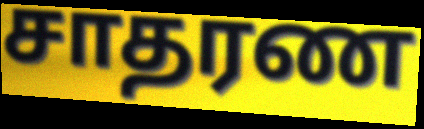
சாதரண